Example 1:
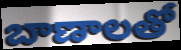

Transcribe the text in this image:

బాణాలతో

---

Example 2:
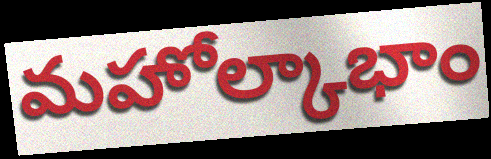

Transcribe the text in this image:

మహోల్కాభాం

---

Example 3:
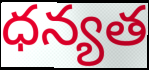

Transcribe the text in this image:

ధన్యత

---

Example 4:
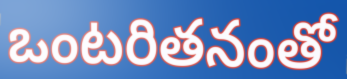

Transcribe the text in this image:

ఒంటరితనంతో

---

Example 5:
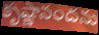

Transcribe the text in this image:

కృష్ణానందను